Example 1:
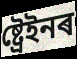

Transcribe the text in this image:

ষ্ট্ৰেইনৰ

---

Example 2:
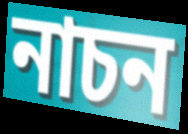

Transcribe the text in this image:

নাচন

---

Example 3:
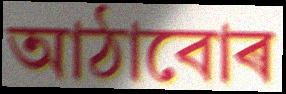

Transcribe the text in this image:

আঠাবোৰ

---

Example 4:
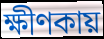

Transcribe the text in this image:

ক্ষীণকায়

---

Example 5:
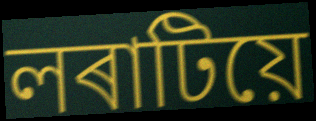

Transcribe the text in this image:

লৰাটিয়ে